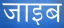
जाइब